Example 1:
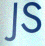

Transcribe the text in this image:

JS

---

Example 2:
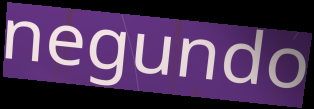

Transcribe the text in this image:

negundo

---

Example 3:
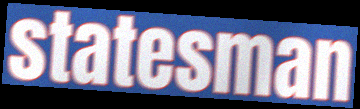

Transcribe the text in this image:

statesman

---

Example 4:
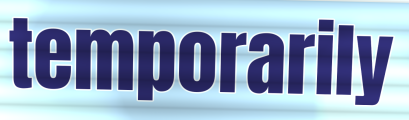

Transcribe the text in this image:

temporarily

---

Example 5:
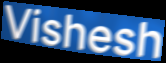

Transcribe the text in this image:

Vishesh